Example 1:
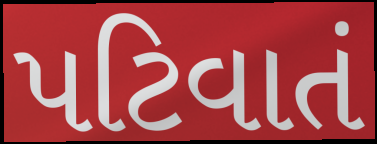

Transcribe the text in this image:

પટિવાતં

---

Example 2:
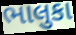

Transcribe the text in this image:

ભાલુકા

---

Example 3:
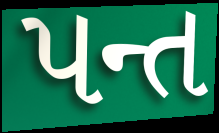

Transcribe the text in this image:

પન્ત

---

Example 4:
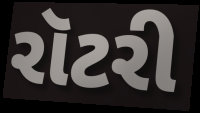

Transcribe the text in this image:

રૉટરી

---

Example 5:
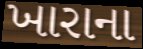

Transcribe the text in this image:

ખારાના